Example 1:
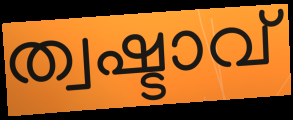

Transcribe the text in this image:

ത്വഷ്ടാവ്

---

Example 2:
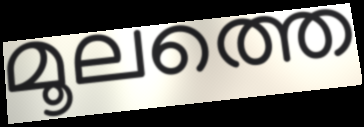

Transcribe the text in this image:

മൂലത്തെ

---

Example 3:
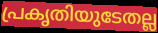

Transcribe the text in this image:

പ്രകൃതിയുടേതല്ല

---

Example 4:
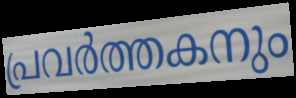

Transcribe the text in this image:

പ്രവർത്തകനും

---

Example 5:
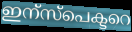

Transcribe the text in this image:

ഇന്സ്പെക്ടറെ